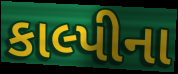
કાલ્પીના